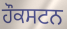
ਹੌਕਸਟਨ